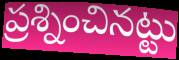
ప్రశ్నించినట్టు